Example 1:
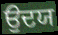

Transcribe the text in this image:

ਉਦਯ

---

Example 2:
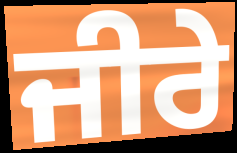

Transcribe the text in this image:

ਜੀਰੇ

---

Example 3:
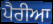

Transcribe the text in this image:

ਪੈਰੀਆ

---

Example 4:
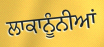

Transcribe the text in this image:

ਲਾਕਾਨੂੰਨੀਆਂ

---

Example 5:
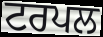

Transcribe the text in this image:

ਟਰਪਲ